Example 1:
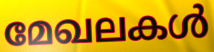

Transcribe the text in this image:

മേഖലകൾ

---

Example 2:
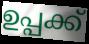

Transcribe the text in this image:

ഉപ്പക്ക്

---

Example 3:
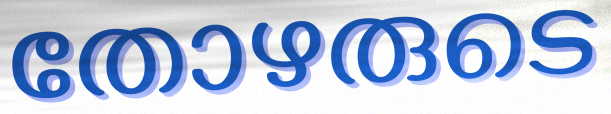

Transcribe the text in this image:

തോഴരുടെ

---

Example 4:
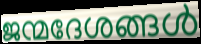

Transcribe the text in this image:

ജന്മദേശങ്ങൾ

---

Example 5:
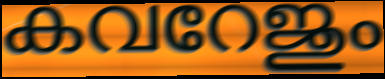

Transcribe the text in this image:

കവറേജും